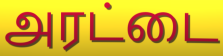
அரட்டை